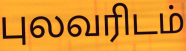
புலவரிடம்